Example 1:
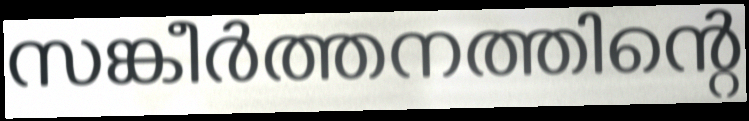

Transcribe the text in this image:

സങ്കീർത്തനത്തിന്റെ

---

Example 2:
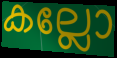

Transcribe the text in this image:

കല്ലോ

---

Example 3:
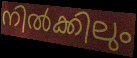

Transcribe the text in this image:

നിൽക്കിലും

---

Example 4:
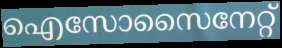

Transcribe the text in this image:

ഐസോസൈനേറ്റ്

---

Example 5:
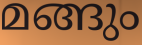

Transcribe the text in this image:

മങ്ങും